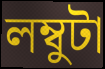
লম্বুটা